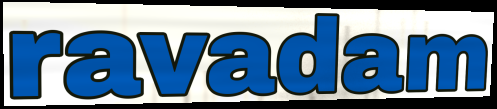
ravadam